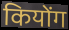
कियोंग